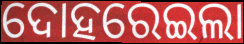
ଦୋହରେଇଲା